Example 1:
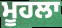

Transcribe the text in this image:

ਮੂਹਲਾ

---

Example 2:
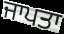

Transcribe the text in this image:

ਜਾਪਤਾ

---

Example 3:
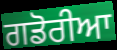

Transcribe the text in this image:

ਗਡੋਰੀਆ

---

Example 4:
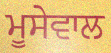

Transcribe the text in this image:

ਮੂਸੇਵਾਲ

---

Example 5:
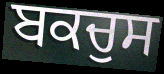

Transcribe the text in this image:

ਬਕਚੁਸ